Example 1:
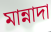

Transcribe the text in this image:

মান্নাদা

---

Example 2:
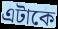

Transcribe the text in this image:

এটাকে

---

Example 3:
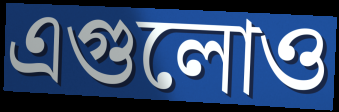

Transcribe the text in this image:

এগুলোও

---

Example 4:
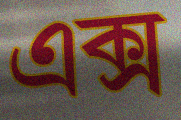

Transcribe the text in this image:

এক্স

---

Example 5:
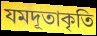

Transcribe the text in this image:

যমদূতাকৃতি